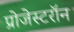
प्रोजेस्टरॉन